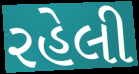
રહેલી